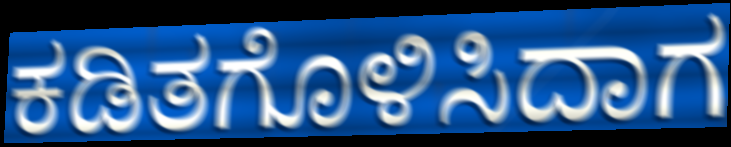
ಕಡಿತಗೊಳಿಸಿದಾಗ